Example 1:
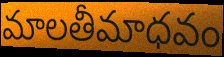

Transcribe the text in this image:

మాలతీమాధవం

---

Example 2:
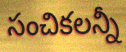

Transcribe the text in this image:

సంచికలన్నీ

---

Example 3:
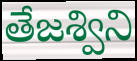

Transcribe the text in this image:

తేజశ్విని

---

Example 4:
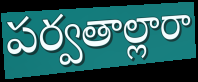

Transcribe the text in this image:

పర్వతాల్లారా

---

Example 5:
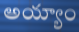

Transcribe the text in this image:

అయ్యాం